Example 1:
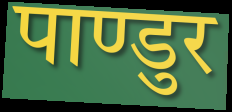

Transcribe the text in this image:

पाण्डुर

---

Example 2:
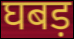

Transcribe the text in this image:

घबड़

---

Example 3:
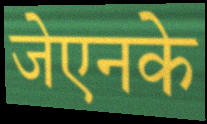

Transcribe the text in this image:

जेएनके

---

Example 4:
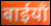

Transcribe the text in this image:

बाईयाँ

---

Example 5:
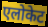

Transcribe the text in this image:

एलोकेट